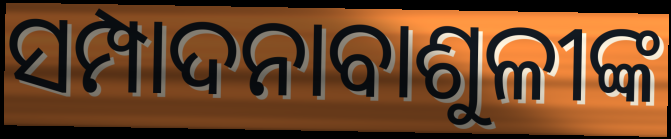
ସମ୍ପାଦନାବାଶୁଳୀଙ୍କ